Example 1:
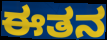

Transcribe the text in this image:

ಈತನ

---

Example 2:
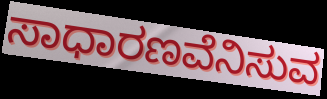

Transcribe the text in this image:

ಸಾಧಾರಣವೆನಿಸುವ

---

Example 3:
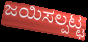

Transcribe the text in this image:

ಜಯಿಸಲ್ಪಟ್ಟ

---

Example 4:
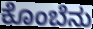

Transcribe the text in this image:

ಕೊಂಬೆನು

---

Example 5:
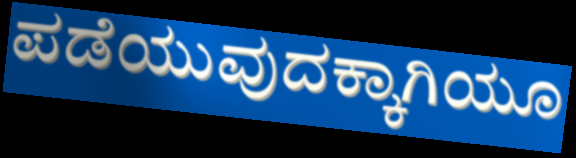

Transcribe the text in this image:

ಪಡೆಯುವುದಕ್ಕಾಗಿಯೂ